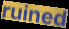
ruined